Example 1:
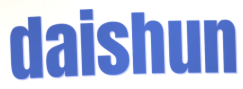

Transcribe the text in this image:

daishun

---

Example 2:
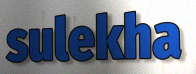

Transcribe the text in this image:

sulekha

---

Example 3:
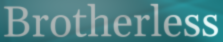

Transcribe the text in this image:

Brotherless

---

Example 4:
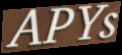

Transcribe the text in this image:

APYs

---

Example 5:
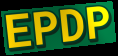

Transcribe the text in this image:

EPDP